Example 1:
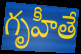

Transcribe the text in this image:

గృహీతే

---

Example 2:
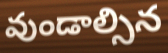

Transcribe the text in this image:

వుండాల్సిన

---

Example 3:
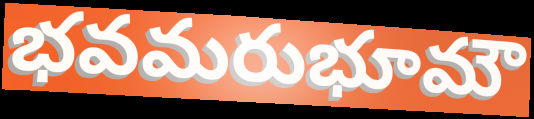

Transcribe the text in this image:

భవమరుభూమౌ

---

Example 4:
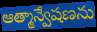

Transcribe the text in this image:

ఆత్మాన్వేషణను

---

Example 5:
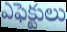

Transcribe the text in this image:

ఎఫెక్టులు